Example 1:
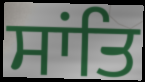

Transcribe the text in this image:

ਸਾਂਤਿ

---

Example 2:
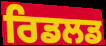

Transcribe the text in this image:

ਰਿਡਲਡ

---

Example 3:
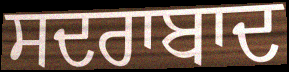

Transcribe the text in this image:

ਸਦਰਾਬਾਦ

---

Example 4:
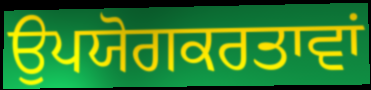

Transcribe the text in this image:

ਉਪਯੋਗਕਰਤਾਵਾਂ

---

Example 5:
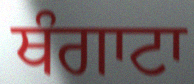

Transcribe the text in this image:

ਥੰਗਾਟਾ